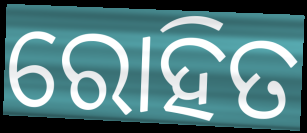
ରୋହିତ